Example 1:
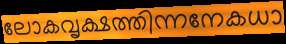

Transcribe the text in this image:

ലോകവൃക്ഷത്തിന്നനേകധാ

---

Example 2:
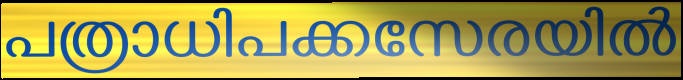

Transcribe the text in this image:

പത്രാധിപക്കസേരയിൽ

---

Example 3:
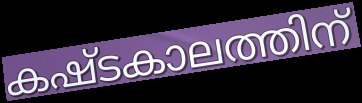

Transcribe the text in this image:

കഷ്ടകാലത്തിന്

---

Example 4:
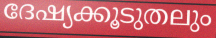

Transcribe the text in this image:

ദേഷ്യക്കൂടുതലും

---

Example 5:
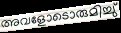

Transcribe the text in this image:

അവളോടൊരുമിച്ചു്